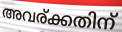
അവര്ക്കതിന്